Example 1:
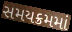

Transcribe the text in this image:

સમયક્રમમાં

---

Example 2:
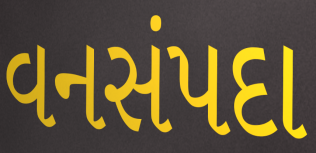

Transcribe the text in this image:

વનસંપદા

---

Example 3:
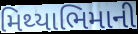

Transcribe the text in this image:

મિથ્યાભિમાની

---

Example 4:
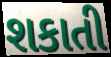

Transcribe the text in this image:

શકાતી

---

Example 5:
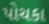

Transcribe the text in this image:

પોચકા